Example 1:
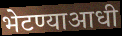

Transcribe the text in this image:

भेटण्याआधी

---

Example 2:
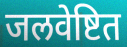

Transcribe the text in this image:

जलवेष्टित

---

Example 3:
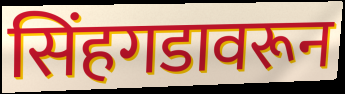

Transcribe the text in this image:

सिंहगडावरून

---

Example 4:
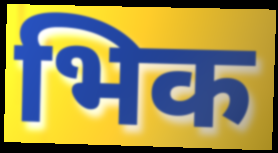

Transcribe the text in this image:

भिक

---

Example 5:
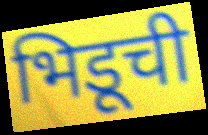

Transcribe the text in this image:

भिडूची